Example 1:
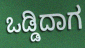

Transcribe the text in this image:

ಒಡ್ಡಿದಾಗ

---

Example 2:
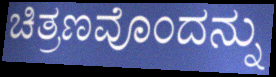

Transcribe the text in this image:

ಚಿತ್ರಣವೊಂದನ್ನು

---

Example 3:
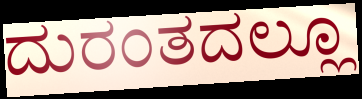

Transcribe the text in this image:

ದುರಂತದಲ್ಲೂ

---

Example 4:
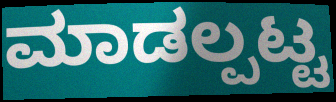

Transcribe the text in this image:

ಮಾಡಲ್ಪಟ್ಟ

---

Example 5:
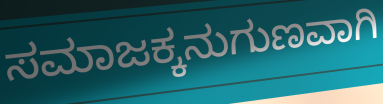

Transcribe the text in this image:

ಸಮಾಜಕ್ಕನುಗುಣವಾಗಿ